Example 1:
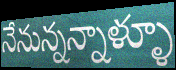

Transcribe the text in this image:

నేనున్నన్నాళ్ళూ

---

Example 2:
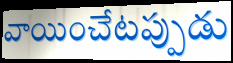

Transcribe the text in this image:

వాయించేటప్పుడు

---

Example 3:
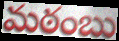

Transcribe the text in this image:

మఠంబు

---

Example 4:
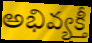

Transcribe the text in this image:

అభివ్యక్తీ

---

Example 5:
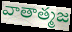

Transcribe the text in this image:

వాతాత్మజ